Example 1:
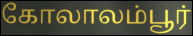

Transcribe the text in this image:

கோலாலம்பூர்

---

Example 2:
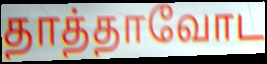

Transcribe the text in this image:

தாத்தாவோட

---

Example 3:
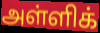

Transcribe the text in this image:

அள்ளிக்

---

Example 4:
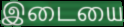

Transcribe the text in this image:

இடையை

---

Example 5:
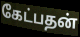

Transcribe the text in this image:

கேட்பதன்